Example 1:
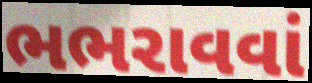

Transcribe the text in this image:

ભભરાવવાં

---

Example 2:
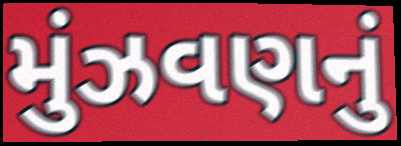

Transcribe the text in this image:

મુંઝવણનું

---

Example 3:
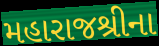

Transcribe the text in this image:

મહારાજશ્રીના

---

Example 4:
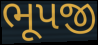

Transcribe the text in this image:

ભૂપજી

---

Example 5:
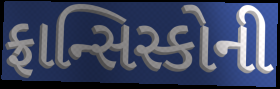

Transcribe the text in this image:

ફ્રાન્સિસ્કોની